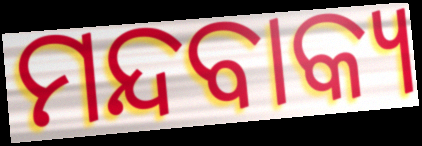
ମନ୍ଦବାକ୍ୟ